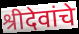
श्रीदेवांचे